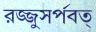
রজ্জুসর্পবত্